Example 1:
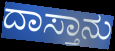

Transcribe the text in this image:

ದಾಸ್ತಾನು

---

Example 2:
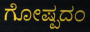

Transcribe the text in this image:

ಗೋಷ್ಪದಂ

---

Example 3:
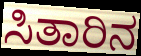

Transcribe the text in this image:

ಸಿತಾರಿನ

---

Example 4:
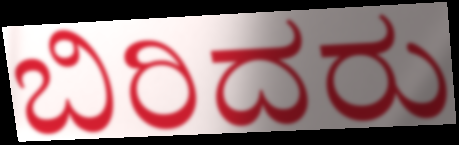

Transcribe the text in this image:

ಬಿರಿದರು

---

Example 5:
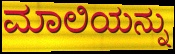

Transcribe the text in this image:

ಮಾಲಿಯನ್ನು